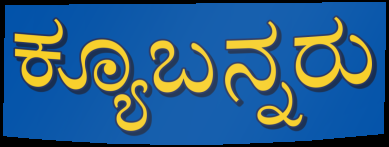
ಕ್ಯೂಬನ್ನರು